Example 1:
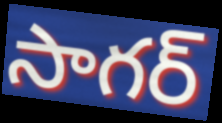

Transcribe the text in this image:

సాగర్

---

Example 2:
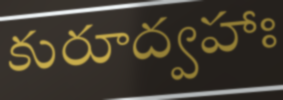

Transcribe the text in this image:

కురూద్వహాః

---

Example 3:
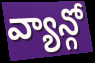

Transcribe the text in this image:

వ్యాన్గో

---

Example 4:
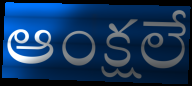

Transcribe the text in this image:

ఆంక్షలే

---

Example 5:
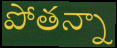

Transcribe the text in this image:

పోతన్నా